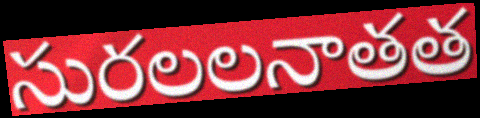
సురలలనాతత